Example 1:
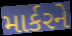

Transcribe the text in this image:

માર્કરને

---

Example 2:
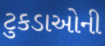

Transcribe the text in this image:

ટુકડાઓની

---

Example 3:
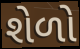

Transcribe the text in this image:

શેળો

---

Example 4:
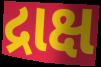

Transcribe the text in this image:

દ્રાક્ષ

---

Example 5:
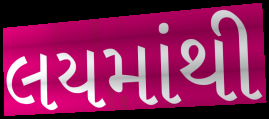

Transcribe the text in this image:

લયમાંથી